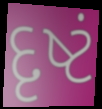
દૃષ્ટં